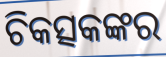
ଚିକତ୍ସକଙ୍କର